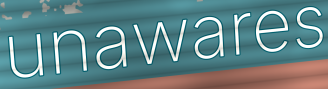
unawares